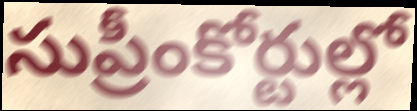
సుప్రీంకోర్టుల్లో